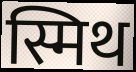
स्मिथ